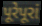
પૂરેપૂરાં